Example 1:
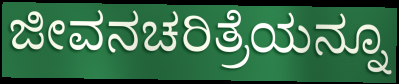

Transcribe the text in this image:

ಜೀವನಚರಿತ್ರೆಯನ್ನೂ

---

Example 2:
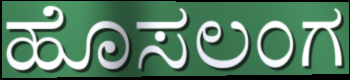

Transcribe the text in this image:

ಹೊಸಲಂಗ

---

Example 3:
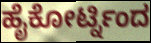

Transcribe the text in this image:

ಹೈಕೋರ್ಟ್ನಿಂದ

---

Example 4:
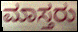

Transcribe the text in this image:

ಮಾಸ್ತರು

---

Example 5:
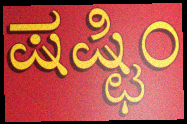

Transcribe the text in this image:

ಷಷ್ಟಿಂ